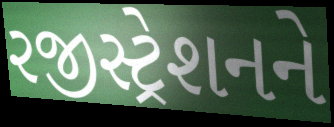
રજીસ્ટ્રેશનને